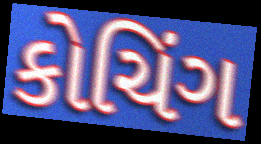
કોચિંગ